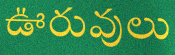
ఊరువులు